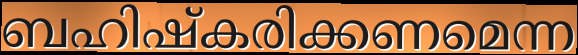
ബഹിഷ്കരിക്കണമെന്ന